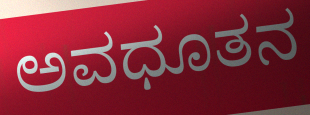
ಅವಧೂತನ